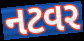
નટવર